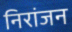
निरांजन